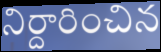
నిర్దారించిన